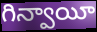
గిన్వాయీ